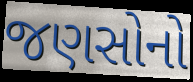
જણસોનો